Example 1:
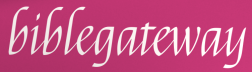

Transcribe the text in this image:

biblegateway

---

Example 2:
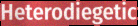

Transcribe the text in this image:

Heterodiegetic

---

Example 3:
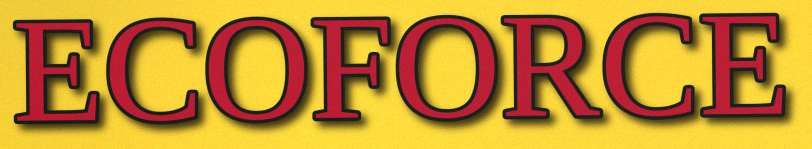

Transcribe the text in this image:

ECOFORCE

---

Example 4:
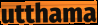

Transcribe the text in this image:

utthama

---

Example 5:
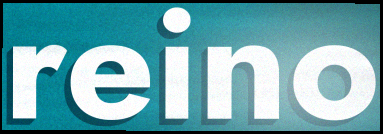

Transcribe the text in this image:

reino